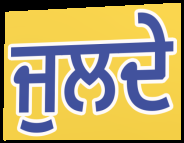
ਜੁਲਦੇ